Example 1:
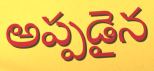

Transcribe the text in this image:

అప్పడైన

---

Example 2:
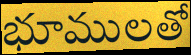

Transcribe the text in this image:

భూములతో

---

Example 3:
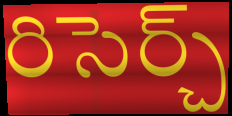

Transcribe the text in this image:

రిసెర్చ్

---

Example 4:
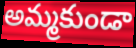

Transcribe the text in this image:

అమ్మకుండా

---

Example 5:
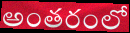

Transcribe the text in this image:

అంతరంలో